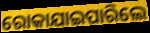
ରୋକାଯାଇପାରିଲେ